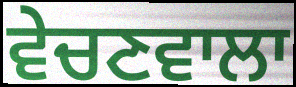
ਵੇਚਣਵਾਲਾ